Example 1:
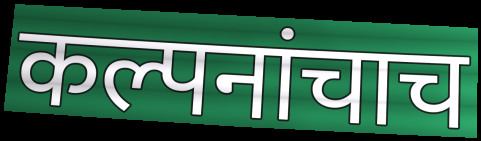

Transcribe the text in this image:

कल्पनांचाच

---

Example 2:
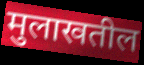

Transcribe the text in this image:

मुलाखतील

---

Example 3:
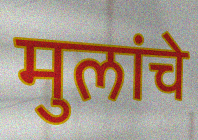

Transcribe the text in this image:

मुलांचे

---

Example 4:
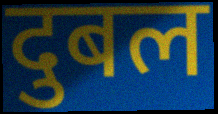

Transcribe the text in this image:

दुबल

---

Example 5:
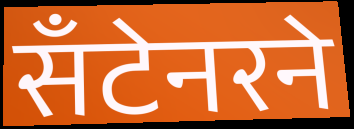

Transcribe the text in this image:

सँटेनरने